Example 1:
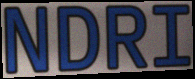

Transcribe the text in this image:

NDRI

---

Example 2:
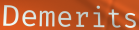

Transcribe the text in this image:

Demerits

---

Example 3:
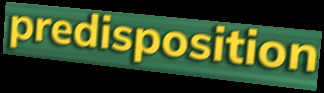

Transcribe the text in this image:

predisposition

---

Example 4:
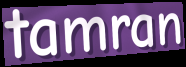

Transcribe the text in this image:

tamran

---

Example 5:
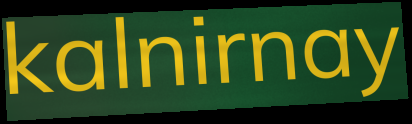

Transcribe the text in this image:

kalnirnay